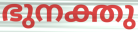
ഭുനക്തു